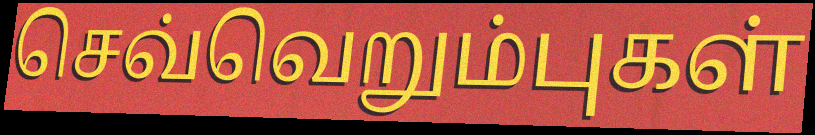
செவ்வெறும்புகள்